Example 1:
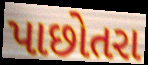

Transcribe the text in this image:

પાછોતરા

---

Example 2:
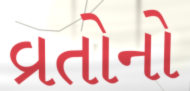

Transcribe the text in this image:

વ્રતોનો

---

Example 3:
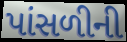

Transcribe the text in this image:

પાંસળીની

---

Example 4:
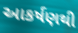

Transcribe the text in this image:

આકર્ષણથી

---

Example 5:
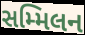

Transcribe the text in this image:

સમ્મિલન